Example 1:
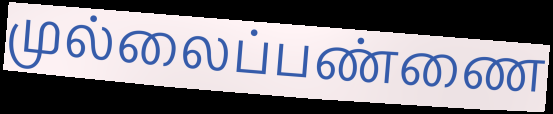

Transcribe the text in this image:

முல்லைப்பண்ணை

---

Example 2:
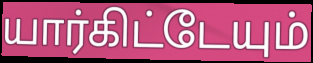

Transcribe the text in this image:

யார்கிட்டேயும்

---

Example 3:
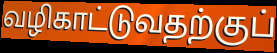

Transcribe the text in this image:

வழிகாட்டுவதற்குப்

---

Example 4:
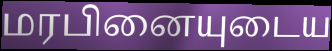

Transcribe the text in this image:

மரபினையுடைய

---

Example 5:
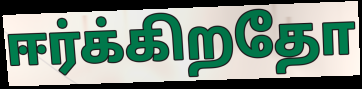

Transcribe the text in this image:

ஈர்க்கிறதோ